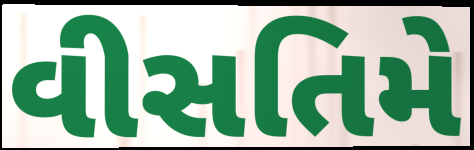
વીસતિમે